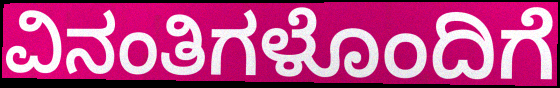
ವಿನಂತಿಗಳೊಂದಿಗೆ